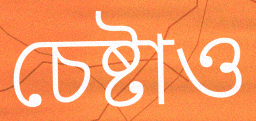
চেষ্টাও